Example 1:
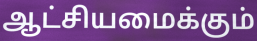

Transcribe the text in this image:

ஆட்சியமைக்கும்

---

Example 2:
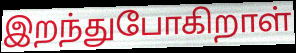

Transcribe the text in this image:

இறந்துபோகிறாள்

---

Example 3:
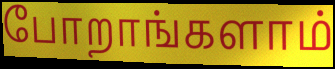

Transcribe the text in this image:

போறாங்களாம்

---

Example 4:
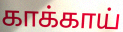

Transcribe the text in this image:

காக்காய்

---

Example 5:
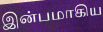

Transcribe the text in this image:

இன்பமாகிய